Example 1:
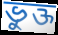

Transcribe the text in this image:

ভুক্ত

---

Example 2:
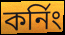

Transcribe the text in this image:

কর্নিং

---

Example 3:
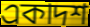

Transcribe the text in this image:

একাদশ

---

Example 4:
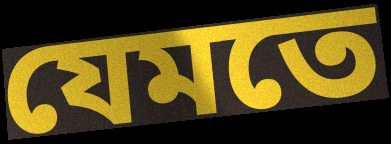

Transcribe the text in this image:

যেমতে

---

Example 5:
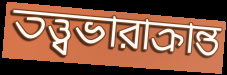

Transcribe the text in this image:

তত্ত্বভারাক্রান্ত